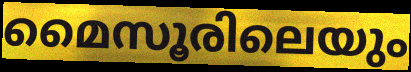
മൈസൂരിലെയും